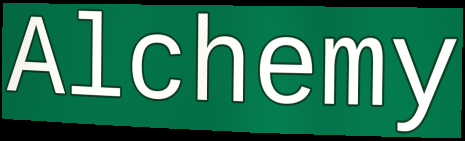
Alchemy